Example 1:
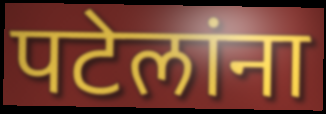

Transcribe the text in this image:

पटेलांना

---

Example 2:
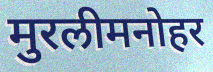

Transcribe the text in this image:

मुरलीमनोहर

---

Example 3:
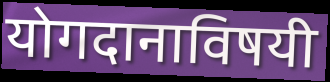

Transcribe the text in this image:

योगदानाविषयी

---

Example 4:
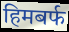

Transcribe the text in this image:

हिमबर्फ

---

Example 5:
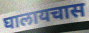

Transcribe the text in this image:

घालायचास